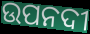
ଉପନଦୀ